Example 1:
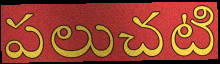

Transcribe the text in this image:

పలుచటి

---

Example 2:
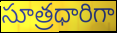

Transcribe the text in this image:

సూత్రధారిగా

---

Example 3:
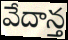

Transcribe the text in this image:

వేదాన్త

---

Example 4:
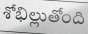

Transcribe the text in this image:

శోభిల్లుతోంది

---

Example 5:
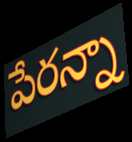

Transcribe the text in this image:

పేరన్నా